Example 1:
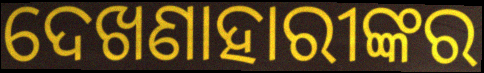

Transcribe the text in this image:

ଦେଖଣାହାରୀଙ୍କର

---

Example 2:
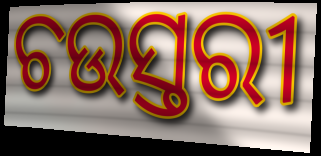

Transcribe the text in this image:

ଚଉସ୍ତରୀ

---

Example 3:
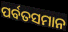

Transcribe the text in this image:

ପର୍ବତସମାନ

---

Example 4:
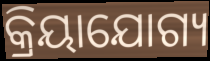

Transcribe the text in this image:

କ୍ରିୟାଯୋଗ୍ୟ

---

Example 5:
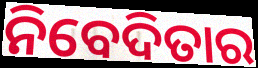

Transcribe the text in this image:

ନିବେଦିତାର